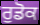
ਰੁਡੋਕ